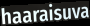
haaraisuva